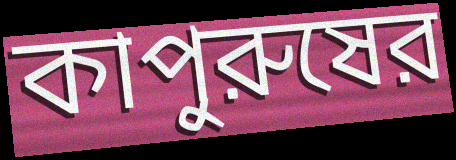
কাপুরুষের